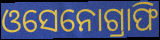
ଓସେନୋଗ୍ରାଫି